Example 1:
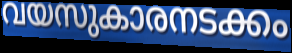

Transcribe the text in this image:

വയസുകാരനടക്കം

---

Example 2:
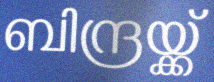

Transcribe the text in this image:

ബിന്ദ്രയ്ക്ക്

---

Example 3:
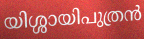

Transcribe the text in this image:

യിശ്ശായിപുത്രൻ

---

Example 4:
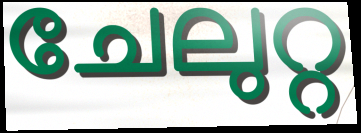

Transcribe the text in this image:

ചേലുറ്റ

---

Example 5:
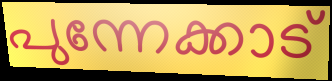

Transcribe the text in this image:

പുന്നേക്കാട്